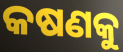
କଷଣକୁ